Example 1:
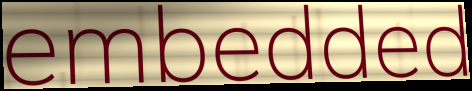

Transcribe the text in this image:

embedded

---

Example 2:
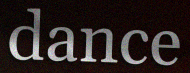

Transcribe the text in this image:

dance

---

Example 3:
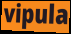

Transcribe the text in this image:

vipula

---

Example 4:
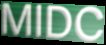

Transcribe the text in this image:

MIDC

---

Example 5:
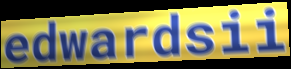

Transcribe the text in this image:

edwardsii